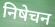
निषेचन